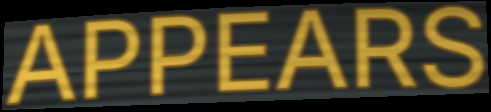
APPEARS